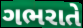
ગભરાતે